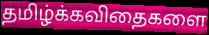
தமிழ்க்கவிதைகளை